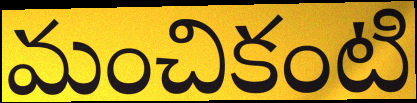
మంచికంటి